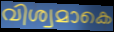
വിശ്വമാകെ